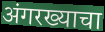
अंगरख्याचा